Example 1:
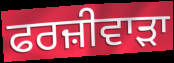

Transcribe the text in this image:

ਫਰਜ਼ੀਵਾਡ਼ਾ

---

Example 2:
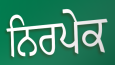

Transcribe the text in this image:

ਨਿਰਪੇਕ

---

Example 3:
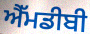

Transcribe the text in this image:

ਐੱਮਡੀਬੀ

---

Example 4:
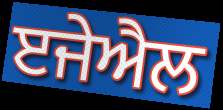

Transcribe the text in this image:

ੲਜੇਐਲ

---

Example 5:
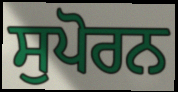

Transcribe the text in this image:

ਸੁਪੋਰਨ